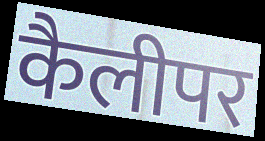
कैलीपर